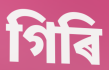
গিৰি